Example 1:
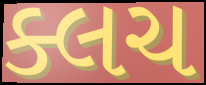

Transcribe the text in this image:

ક્લચ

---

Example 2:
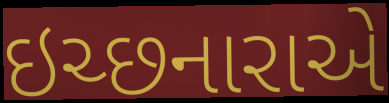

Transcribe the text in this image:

ઇચ્છનારાએ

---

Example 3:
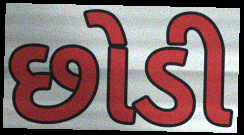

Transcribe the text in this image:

છોડી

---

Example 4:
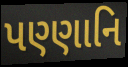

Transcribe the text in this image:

પણ્ણાનિ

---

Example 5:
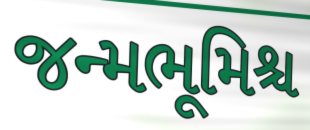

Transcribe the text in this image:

જન્મભૂમિશ્ચ